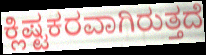
ಕ್ಲಿಷ್ಟಕರವಾಗಿರುತ್ತದೆ